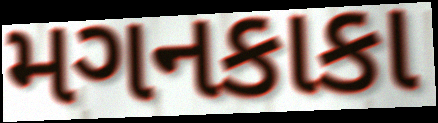
મગનકાકા